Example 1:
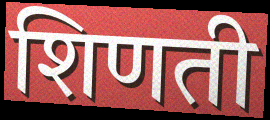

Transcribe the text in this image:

शिणती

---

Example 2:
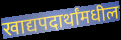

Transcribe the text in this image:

खाद्यपदार्थांमधील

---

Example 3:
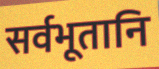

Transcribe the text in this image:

सर्वभूतानि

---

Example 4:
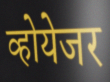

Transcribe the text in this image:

व्होयेजर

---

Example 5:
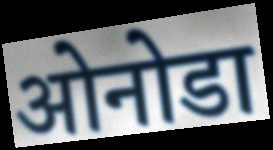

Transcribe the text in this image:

ओनोडा